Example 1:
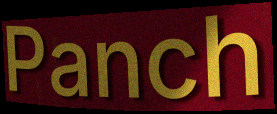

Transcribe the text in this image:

Panch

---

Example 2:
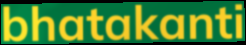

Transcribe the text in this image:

bhatakanti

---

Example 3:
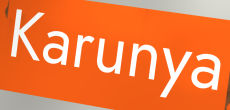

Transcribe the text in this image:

Karunya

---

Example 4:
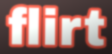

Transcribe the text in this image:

flirt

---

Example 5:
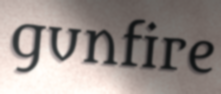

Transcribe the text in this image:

gunfire